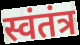
स्वंतंत्र